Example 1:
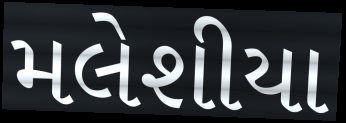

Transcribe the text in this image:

મલેશીયા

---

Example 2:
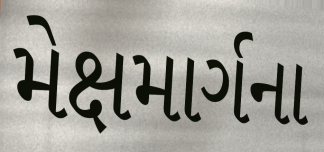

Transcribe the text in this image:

મેક્ષમાર્ગના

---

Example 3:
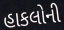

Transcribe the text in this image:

હાકલોની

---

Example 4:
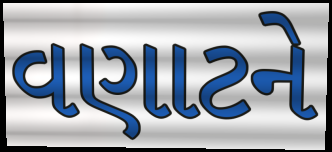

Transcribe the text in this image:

વણાટને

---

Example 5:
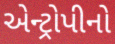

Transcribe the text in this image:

એન્ટ્રોપીનો